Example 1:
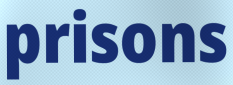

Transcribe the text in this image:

prisons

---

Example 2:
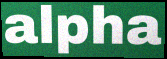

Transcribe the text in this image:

alpha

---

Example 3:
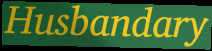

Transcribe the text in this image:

Husbandary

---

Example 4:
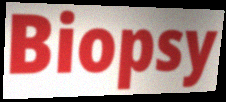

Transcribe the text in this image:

Biopsy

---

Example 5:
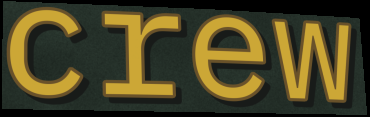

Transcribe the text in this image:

crew